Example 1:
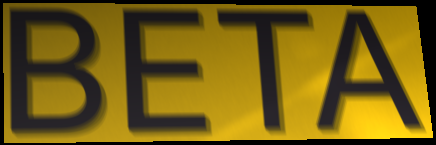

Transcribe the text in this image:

BETA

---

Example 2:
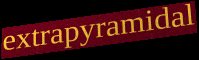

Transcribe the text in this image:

extrapyramidal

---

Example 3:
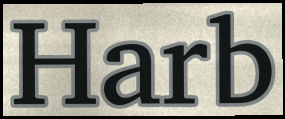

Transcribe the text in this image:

Harb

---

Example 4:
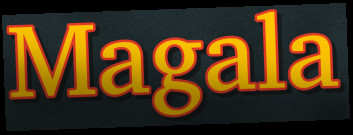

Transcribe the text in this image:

Magala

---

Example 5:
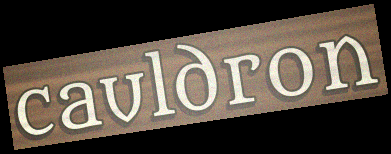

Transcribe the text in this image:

cauldron